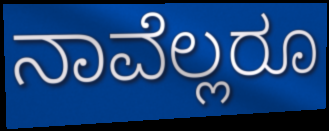
ನಾವೆಲ್ಲರೂ